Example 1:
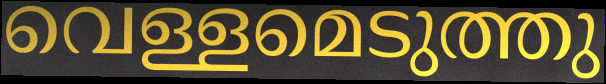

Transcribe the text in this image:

വെള്ളമെടുത്തു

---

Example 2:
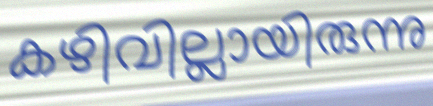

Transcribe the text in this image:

കഴിവില്ലായിരുന്നു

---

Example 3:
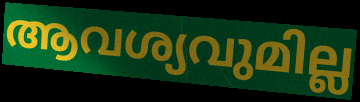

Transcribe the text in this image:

ആവശ്യവുമില്ല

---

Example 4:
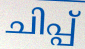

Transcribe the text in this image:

ചിപ്പ്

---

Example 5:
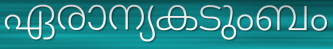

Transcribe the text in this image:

ഏരാന്യകടുംബം